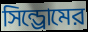
সিন্ড্রোমের